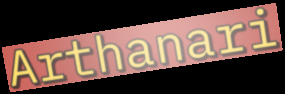
Arthanari